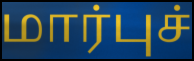
மார்புச்